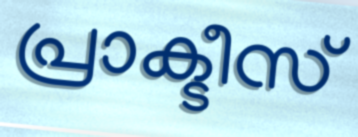
പ്രാക്ടീസ്